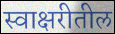
स्वाक्षरीतील